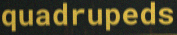
quadrupeds